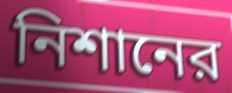
নিশানের